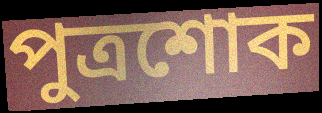
পুত্রশোক